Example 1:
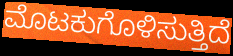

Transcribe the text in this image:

ಮೊಟಕುಗೊಳಿಸುತ್ತಿದೆ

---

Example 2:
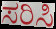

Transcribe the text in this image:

ಸರಿಸಿ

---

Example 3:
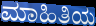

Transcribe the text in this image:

ಮಾಹಿತಿಯ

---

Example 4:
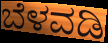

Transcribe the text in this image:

ಬೆಳವಡಿ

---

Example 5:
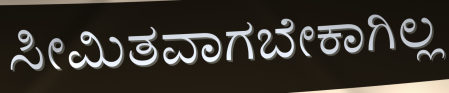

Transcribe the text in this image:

ಸೀಮಿತವಾಗಬೇಕಾಗಿಲ್ಲ